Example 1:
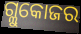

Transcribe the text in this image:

ଗ୍ଲୁକୋଜର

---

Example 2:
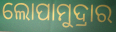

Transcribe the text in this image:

ଲୋପାମୁଦ୍ରାର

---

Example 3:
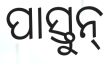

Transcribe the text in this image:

ପାସ୍ତୁନ୍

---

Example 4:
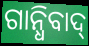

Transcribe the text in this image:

ଗାନ୍ଧିବାଦ୍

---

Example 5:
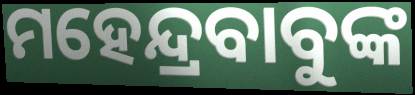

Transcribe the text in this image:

ମହେନ୍ଦ୍ରବାବୁଙ୍କ